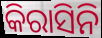
କିରାସିନି